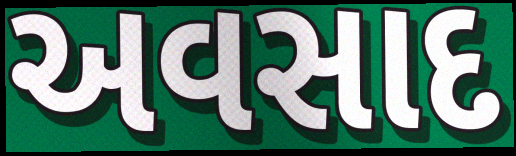
અવસાદ